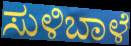
ಸುಳಿಬಾಳೆ